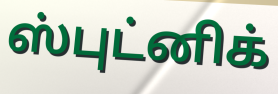
ஸ்புட்னிக்